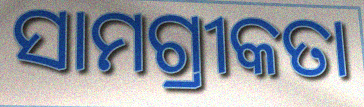
ସାମଗ୍ରୀକତା